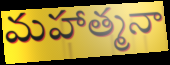
మహాత్మనా